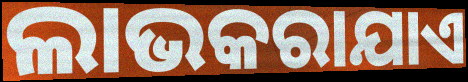
ଲାଭକରାଯାଏ